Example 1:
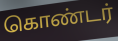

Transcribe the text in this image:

கொண்டர்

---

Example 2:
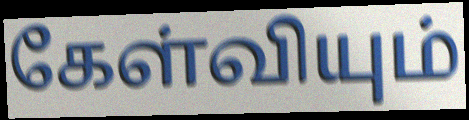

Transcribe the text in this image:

கேள்வியும்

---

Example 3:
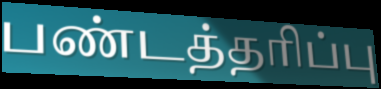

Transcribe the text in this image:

பண்டத்தரிப்பு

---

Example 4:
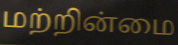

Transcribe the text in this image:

மற்றின்மை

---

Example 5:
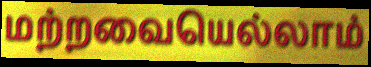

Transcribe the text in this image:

மற்றவையெல்லாம்